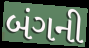
બંગની